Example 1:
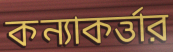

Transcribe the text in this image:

কন্যাকর্ত্তার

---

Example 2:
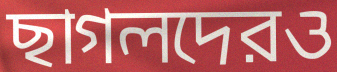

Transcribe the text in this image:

ছাগলদেরও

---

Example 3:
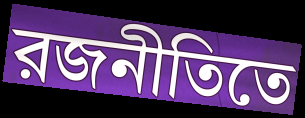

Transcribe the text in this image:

রজনীতিতে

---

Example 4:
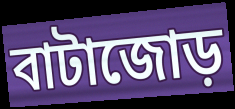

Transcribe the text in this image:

বাটাজোড়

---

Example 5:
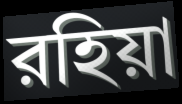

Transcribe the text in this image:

রহিয়া